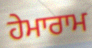
ਹੇਮਾਰਾਮ